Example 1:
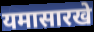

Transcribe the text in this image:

यमासारखे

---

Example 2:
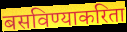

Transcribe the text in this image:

बसविण्याकरिता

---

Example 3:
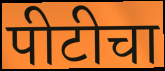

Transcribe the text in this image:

पीटीचा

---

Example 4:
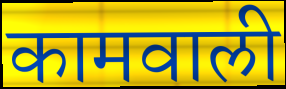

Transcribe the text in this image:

कामवाली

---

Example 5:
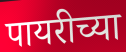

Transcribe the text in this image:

पायरीच्या